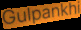
Gulpankhi